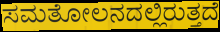
ಸಮತೋಲನದಲ್ಲಿರುತ್ತದೆ